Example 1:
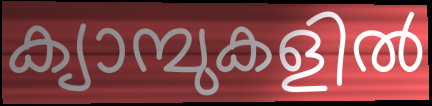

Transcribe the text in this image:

ക്യാമ്പുകളിൽ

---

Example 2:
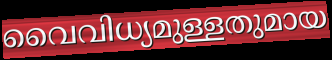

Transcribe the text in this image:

വൈവിധ്യമുള്ളതുമായ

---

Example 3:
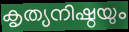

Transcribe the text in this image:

കൃത്യനിഷ്ഠയും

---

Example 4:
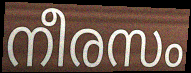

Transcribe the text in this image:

നീരസം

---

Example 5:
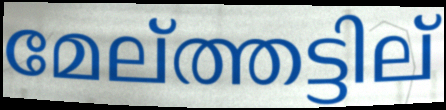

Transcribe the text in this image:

മേല്ത്തട്ടില്